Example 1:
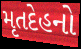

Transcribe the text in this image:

મૃતદેહનો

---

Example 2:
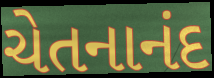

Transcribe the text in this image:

ચેતનાનંદ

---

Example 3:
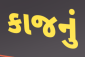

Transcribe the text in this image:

કાજનું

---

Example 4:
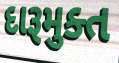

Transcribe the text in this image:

દારૂમુક્ત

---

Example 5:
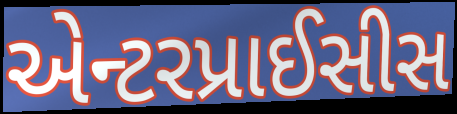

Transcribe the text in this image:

એન્ટરપ્રાઈસીસ